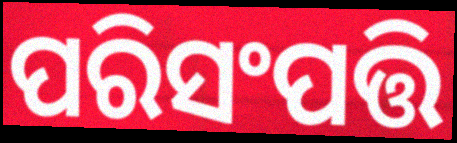
ପରିସଂପତ୍ତି